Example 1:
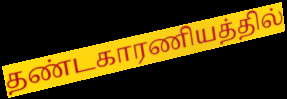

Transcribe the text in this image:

தண்டகாரணியத்தில்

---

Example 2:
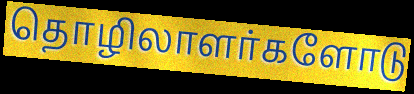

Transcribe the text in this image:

தொழிலாளர்களோடு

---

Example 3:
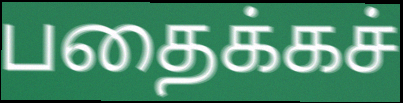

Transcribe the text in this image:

பதைக்கச்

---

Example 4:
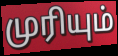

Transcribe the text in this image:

முரியும்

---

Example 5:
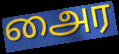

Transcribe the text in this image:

அைர